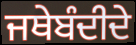
ਜਥੇਬੰਦੀਦੇ